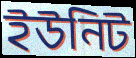
ইউনিট